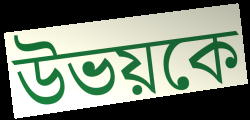
উভয়কে